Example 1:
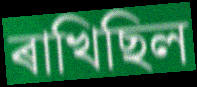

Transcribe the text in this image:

ৰাখিছিল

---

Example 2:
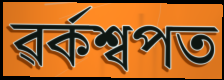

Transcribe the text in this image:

ৱৰ্কশ্বপত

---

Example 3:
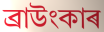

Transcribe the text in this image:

ব্ৰাউংকাৰ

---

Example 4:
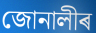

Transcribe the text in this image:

জোনালীৰ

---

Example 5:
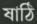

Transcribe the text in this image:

ষাঠি